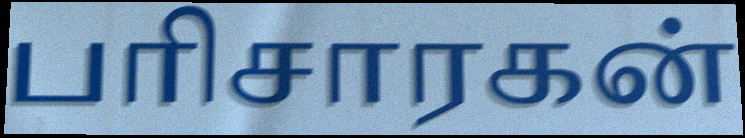
பரிசாரகன்